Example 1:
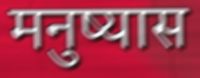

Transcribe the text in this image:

मनुष्यास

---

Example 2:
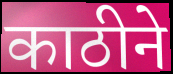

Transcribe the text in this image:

काठीने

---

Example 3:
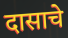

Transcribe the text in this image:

दासाचे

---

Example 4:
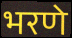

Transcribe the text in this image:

भरणे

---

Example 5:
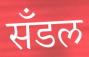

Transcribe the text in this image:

सँडल